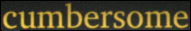
cumbersome